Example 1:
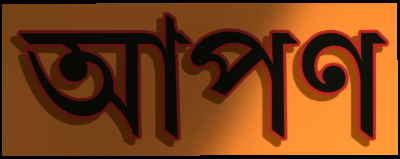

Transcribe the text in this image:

আপণ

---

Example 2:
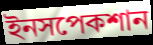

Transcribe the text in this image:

ইনসপেকশান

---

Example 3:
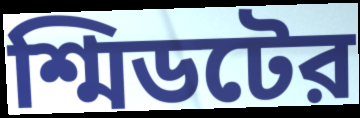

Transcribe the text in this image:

শ্মিডটের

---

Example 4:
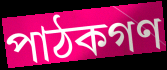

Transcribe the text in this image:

পাঠকগণ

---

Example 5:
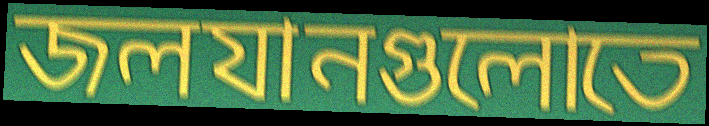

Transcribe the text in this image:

জলযানগুলোতে